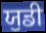
ਯੁਡੀ